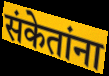
संकेतांना